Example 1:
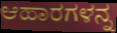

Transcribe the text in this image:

ಆಹಾರಗಳನ್ನ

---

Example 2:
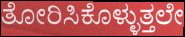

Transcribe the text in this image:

ತೋರಿಸಿಕೊಳ್ಳುತ್ತಲೇ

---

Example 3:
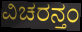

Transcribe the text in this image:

ವಿಚರನ್ತಂ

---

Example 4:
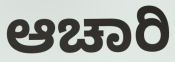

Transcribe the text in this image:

ಆಚಾರಿ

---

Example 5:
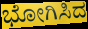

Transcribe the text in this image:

ಭೋಗಿಸಿದ